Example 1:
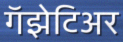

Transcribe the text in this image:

गॅझेटिअर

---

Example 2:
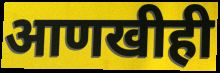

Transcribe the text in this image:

आणखीही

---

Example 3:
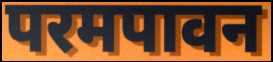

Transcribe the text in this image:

परमपावन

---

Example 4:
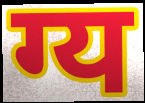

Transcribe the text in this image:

ग्य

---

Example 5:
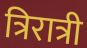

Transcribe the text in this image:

त्रिरात्री